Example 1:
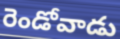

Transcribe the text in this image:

రెండోవాడు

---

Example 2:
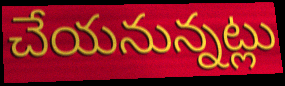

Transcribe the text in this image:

చేయనున్నట్లు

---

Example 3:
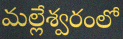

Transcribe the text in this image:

మల్లేశ్వరంలో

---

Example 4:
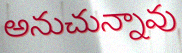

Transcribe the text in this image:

అనుచున్నావు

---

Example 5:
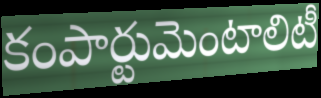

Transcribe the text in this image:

కంపార్టుమెంటాలిటీ